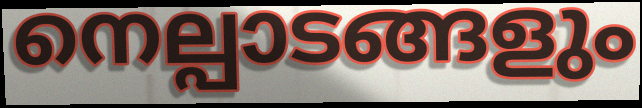
നെല്പാടങ്ങളും